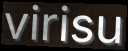
virisu